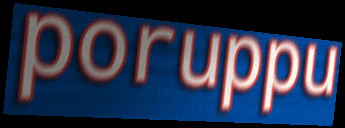
poruppu